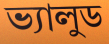
ভ্যালুড